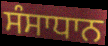
ਸੰਸਾਧਾਨ